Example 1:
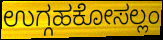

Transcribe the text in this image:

ಉಗ್ಗಹಕೋಸಲ್ಲಂ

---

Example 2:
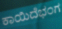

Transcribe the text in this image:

ಕಾಯಿದೆಭಂಗ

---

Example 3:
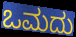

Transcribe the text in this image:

ಒಮದು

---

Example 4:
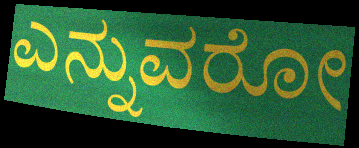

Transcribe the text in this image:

ಎನ್ನುವರೋ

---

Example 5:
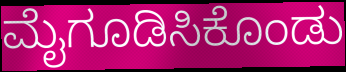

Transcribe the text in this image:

ಮೈಗೂಡಿಸಿಕೊಂಡು